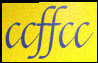
ccffcc